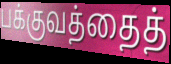
பக்குவத்தைத்